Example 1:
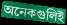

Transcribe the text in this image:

অনেকগুলিই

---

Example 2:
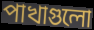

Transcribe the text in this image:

পাখাগুলো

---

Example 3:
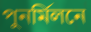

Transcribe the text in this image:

পুনর্মিলনে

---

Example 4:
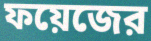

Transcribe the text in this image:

ফয়েজের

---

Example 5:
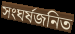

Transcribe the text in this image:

সংঘর্ষজনিত